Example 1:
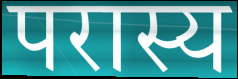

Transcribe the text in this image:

परास्य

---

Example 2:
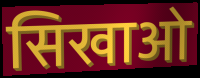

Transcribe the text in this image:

सिखाओ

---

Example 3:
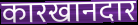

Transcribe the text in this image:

कारखानदार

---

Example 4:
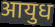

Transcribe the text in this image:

आयुध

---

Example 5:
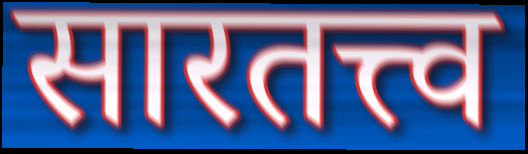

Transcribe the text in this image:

सारतत्त्व